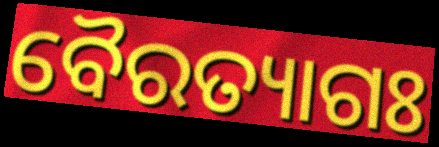
ବୈରତ୍ୟାଗଃ